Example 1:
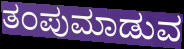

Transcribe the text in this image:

ತಂಪುಮಾಡುವ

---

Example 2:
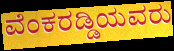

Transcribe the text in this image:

ವೆಂಕರಡ್ಡಿಯವರು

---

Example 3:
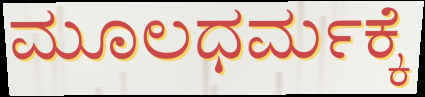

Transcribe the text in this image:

ಮೂಲಧರ್ಮಕ್ಕೆ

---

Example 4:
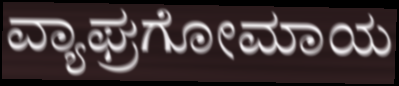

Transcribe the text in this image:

ವ್ಯಾಘ್ರಗೋಮಾಯ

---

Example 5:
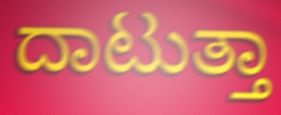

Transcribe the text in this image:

ದಾಟುತ್ತಾ